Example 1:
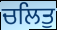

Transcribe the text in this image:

ਚਲਿਤੁ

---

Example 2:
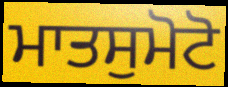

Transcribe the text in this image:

ਮਾਤਸੁਮੋਟੋ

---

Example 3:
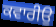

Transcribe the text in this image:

ਕਵਾਰੀਉ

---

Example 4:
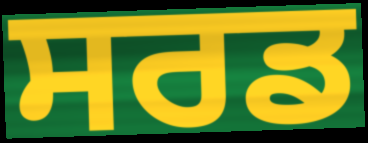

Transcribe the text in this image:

ਸਰਡ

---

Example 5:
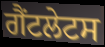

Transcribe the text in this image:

ਗੈਂਟਲੇਟਸ